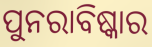
ପୁନରାବିଷ୍କାର